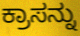
ಕ್ರಾಸನ್ನು